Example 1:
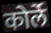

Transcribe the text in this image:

कोर्ले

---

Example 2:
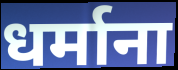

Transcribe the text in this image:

धर्माना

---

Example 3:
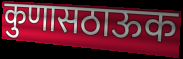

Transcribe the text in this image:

कुणासठाऊक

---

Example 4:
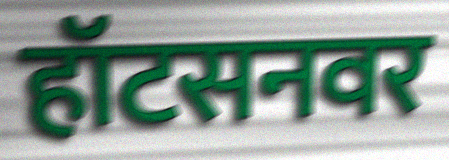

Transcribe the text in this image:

हॉटसनवर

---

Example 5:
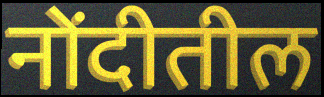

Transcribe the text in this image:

नोंदीतील